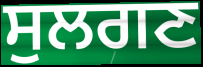
ਸੁਲਗਣ